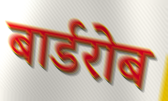
बार्डरोब